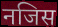
नजिस